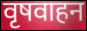
वृषवाहन